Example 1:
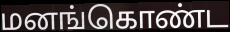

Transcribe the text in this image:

மனங்கொண்ட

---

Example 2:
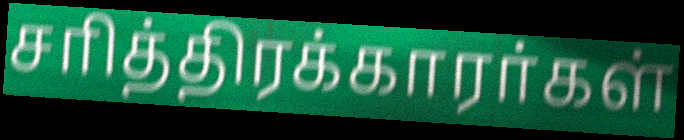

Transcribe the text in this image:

சரித்திரக்காரர்கள்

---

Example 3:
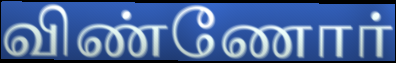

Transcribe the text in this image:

விண்ணோர்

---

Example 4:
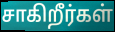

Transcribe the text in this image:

சாகிறீர்கள்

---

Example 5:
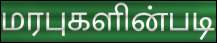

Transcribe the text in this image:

மரபுகளின்படி